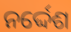
ନର୍ଦ୍ଦେଶ